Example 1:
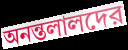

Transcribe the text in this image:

অনন্তলালদের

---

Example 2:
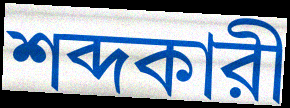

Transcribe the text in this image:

শব্দকারী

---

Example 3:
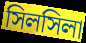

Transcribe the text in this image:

সিলসিলা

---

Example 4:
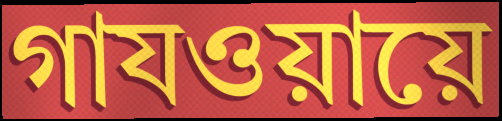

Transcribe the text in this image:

গাযওয়ায়ে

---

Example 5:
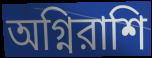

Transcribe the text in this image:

অগ্নিরাশি